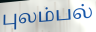
புலம்பல்